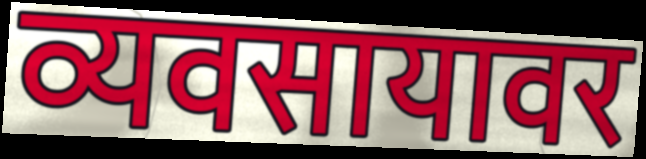
व्यवसायावर